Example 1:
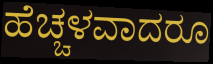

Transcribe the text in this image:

ಹೆಚ್ಚಳವಾದರೂ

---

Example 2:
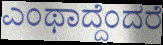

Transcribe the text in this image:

ಎಂಥಾದ್ದೆಂದರೆ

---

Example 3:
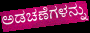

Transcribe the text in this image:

ಅಡಚಣೆಗಳನ್ನು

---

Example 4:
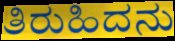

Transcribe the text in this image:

ತಿರುಹಿದನು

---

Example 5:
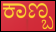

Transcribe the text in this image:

ಕಾಣ್ಬ